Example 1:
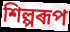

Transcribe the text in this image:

শিল্পৰূপ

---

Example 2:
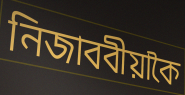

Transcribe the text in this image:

নিজাববীয়াকৈ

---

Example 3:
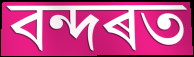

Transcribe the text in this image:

বন্দৰত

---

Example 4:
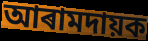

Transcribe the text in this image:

আৰামদায়ক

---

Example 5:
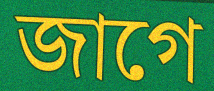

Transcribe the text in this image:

জাগে